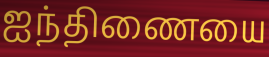
ஐந்திணையை